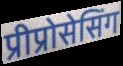
प्रीप्रोसेसिंग